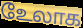
உேலாக